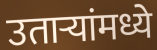
उतार्‍यांमध्ये